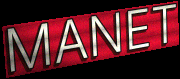
MANET